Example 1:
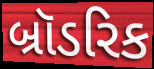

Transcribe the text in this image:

બ્રૉડરિક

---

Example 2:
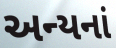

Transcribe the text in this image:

અન્યનાં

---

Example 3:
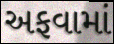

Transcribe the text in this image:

અફવામાં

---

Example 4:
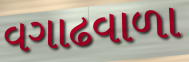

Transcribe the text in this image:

વગાઢવાળા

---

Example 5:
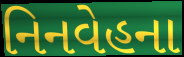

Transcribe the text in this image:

નિનવેહના